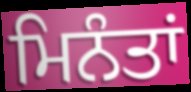
ਮਿਨੰਤਾਂ